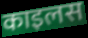
काइलस